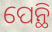
ପେନ୍ଥି